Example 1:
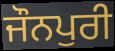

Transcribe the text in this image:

ਜੌਨਪੁਰੀ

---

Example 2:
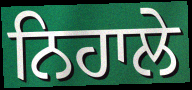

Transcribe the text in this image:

ਨਿਹਾਲੇ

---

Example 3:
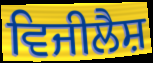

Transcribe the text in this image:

ਵਿਜੀਲੈਸ਼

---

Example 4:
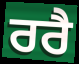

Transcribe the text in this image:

ਰਰੈ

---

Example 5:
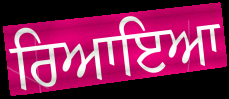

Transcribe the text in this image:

ਰਿਆਇਆ